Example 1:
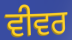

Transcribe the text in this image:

ਵੀਵਰ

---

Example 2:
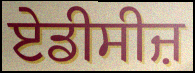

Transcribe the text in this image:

ਏਡੀਸੀਜ਼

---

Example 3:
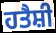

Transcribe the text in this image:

ਹਤੈਸ਼ੀ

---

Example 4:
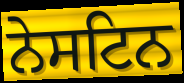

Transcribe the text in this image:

ਨੇਸਟਿਨ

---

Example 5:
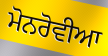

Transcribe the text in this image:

ਮੋਨਰੋਵੀਆ